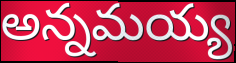
అన్నమయ్య